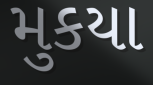
મુકયા